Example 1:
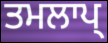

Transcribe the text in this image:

ਤਮਲਾਪ੍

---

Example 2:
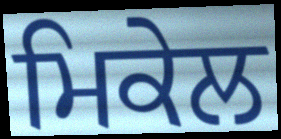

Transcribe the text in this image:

ਮਿਕੇਲ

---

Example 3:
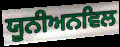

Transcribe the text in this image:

ਯੂਨੀਅਨਵਿਲ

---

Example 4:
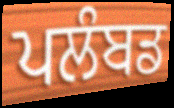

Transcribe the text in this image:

ਪਲੰਬਡ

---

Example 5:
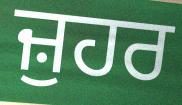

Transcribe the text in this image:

ਜ਼ੁਹਰ